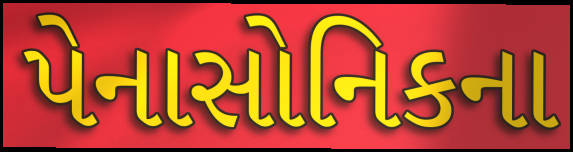
પેનાસોનિકના